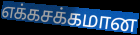
எக்கசக்கமான